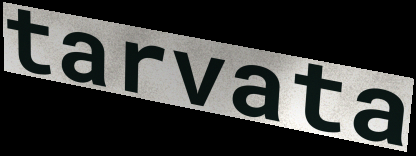
tarvata